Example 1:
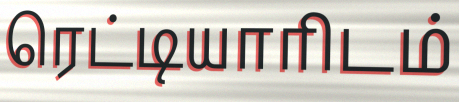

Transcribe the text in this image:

ரெட்டியாரிடம்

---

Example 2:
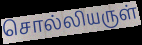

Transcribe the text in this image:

சொல்லியருள்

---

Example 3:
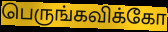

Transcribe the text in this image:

பெருங்கவிக்கோ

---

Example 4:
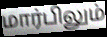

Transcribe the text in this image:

மார்பிலும்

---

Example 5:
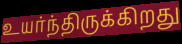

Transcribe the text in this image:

உயர்ந்திருக்கிறது